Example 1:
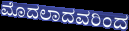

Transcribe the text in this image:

ಮೊದಲಾದವರಿಂದ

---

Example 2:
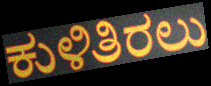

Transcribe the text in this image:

ಕುಳಿತಿರಲು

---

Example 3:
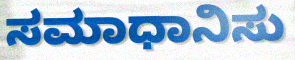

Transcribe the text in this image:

ಸಮಾಧಾನಿಸು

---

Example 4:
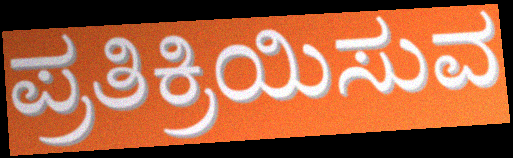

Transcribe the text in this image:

ಪ್ರತಿಕ್ರಿಯಿಸುವ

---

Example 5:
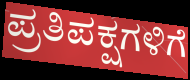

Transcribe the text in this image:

ಪ್ರತಿಪಕ್ಷಗಳಿಗೆ